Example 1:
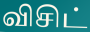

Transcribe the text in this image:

விசிட்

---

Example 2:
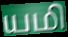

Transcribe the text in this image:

யமி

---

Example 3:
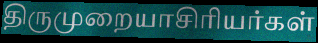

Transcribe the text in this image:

திருமுறையாசிரியர்கள்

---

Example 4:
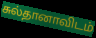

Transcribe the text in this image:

சுல்தானாவிடம்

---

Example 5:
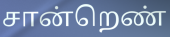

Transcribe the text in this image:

சான்றெண்